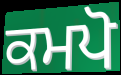
ਕਮਪੋ